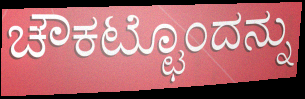
ಚೌಕಟ್ಟೊಂದನ್ನು